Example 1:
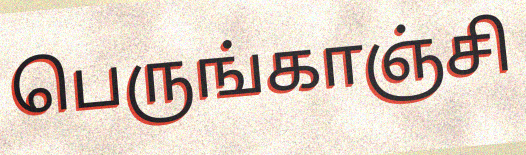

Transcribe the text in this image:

பெருங்காஞ்சி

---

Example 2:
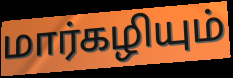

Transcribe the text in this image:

மார்கழியும்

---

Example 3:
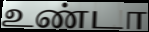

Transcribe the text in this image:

உண்டா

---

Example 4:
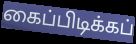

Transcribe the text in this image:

கைப்பிடிக்கப்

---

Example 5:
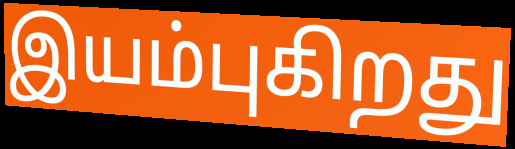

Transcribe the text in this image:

இயம்புகிறது